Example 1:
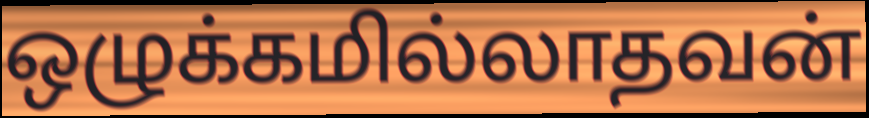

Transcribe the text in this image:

ஒழுக்கமில்லாதவன்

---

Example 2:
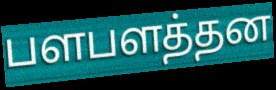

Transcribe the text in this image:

பளபளத்தன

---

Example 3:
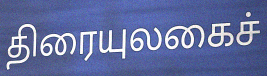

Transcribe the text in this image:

திரையுலகைச்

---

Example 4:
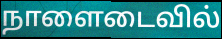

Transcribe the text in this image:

நாளைடைவில்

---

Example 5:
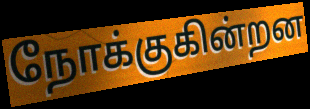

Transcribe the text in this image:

நோக்குகின்றன